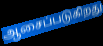
ஆசைப்படுகிறது